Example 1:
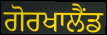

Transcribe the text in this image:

ਗੋਰਖਾਲੈਂਡ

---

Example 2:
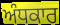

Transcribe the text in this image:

ਅੰਧਕਾਰ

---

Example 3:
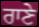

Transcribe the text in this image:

ਰਾਣੇ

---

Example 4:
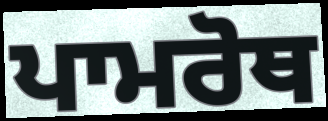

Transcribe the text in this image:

ਪਾਮਰੋਥ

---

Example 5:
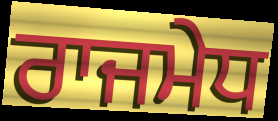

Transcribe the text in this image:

ਰਾਜਮੇਧ